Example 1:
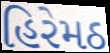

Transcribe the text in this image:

હિરેમઠ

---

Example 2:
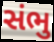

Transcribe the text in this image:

સંભુ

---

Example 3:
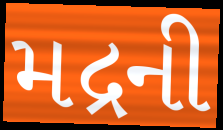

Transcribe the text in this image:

મદ્રની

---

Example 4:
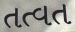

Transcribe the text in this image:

તત્વત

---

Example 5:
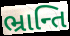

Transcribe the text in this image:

ભ્રાન્તિ